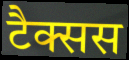
टैक्सस